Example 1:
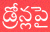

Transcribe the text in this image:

డ్రోన్లపై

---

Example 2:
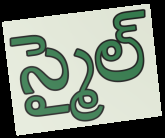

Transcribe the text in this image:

స్మైల్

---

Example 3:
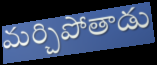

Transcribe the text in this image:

మర్చిపోతాడు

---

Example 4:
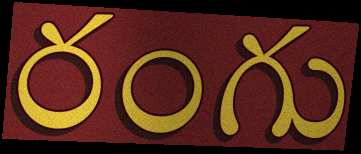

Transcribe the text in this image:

రంగు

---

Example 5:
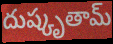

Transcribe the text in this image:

దుష్కృతామ్